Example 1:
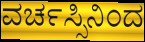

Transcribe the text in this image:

ವರ್ಚಸ್ಸಿನಿಂದ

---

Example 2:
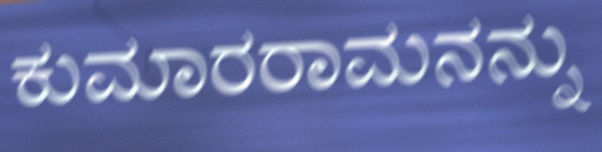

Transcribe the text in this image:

ಕುಮಾರರಾಮನನ್ನು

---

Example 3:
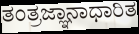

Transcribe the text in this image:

ತಂತ್ರಜ್ಞಾನಾಧಾರಿತ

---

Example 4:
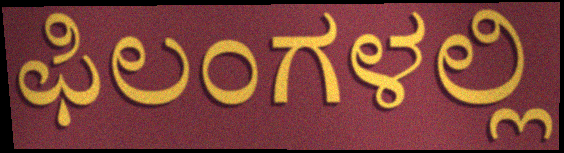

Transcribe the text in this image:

ಫಿಲಂಗಳಲ್ಲಿ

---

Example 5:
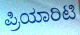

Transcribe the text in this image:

ಪ್ರಿಯಾರಿಟಿ